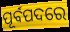
ପୂର୍ବପଦରେ